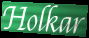
Holkar